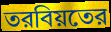
তরবিয়তের